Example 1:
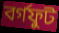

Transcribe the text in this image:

বৰ্গফুট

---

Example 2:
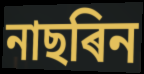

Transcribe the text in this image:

নাছৰিন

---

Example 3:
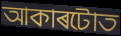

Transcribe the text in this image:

আকাৰটোত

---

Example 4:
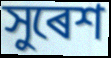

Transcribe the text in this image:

সুৰেশ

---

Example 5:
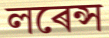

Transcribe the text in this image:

লৰেন্স